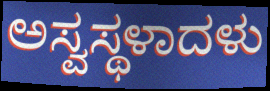
ಅಸ್ವಸ್ಥಳಾದಳು